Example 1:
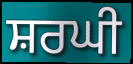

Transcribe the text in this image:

ਸ਼ਰਘੀ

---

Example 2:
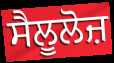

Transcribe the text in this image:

ਸੈਲੂਲੋਜ਼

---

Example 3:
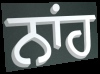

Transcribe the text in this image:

ਨਾਂਹ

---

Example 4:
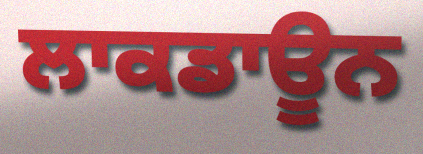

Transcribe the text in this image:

ਲਾਕਡਾਊਨ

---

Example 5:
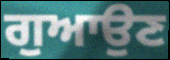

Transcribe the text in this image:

ਗੁਆਉਣ